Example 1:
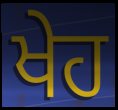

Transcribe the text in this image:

ਖੇਹ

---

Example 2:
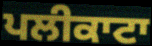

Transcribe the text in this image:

ਪਲੀਕਾਟਾ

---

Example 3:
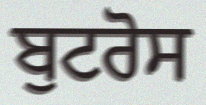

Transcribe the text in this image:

ਬੁਟਰੋਸ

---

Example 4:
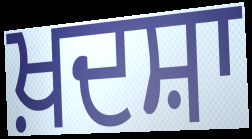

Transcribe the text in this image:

ਖ਼ਦਸ਼ਾ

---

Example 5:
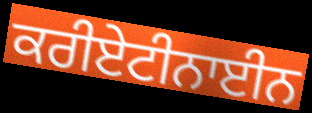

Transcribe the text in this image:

ਕਰੀਏਟੀਨਾਈਨ